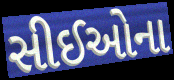
સીઈઓના